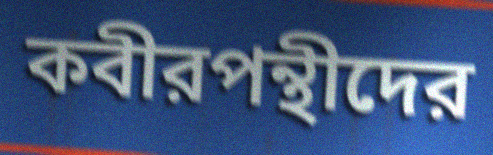
কবীরপন্থীদের